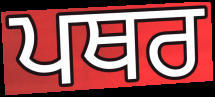
ਪਥਰ